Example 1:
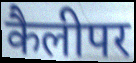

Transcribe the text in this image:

कैलीपर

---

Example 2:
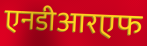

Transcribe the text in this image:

एनडीआरएफ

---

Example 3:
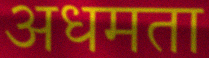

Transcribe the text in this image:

अधमता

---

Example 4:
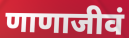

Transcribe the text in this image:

णाणाजीवं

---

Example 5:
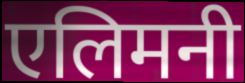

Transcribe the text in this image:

एलिमनी